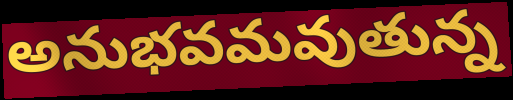
అనుభవమవుతున్న